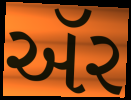
ઍર